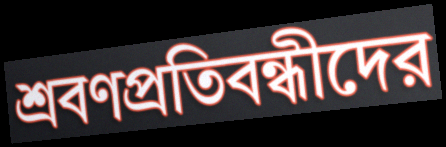
শ্রবণপ্রতিবন্ধীদের